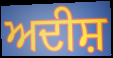
ਅਦੀਸ਼